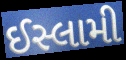
ઈસ્લામી